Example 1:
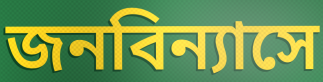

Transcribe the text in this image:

জনবিন্যাসে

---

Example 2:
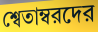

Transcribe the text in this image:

শ্বেতাম্বরদের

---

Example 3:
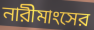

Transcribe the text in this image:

নারীমাংসের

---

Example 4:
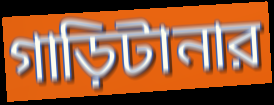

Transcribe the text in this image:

গাড়িটানার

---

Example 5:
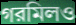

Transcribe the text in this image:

গরমিলও